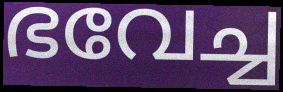
ഭവേച്ച